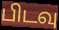
பிடவு